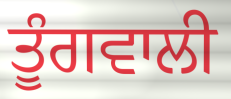
ਤੂੰਗਵਾਲੀ